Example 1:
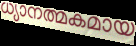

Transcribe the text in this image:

ധ്യാനത്മകമായ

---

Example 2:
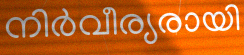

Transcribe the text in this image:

നിർവീര്യരായി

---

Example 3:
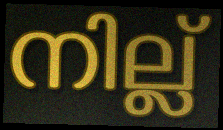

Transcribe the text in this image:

നില്ല്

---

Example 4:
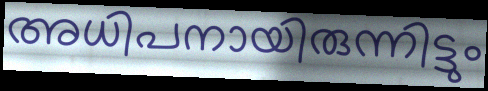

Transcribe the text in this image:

അധിപനായിരുന്നിട്ടും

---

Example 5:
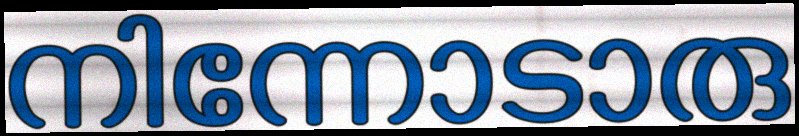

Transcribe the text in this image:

നിന്നോടാരു